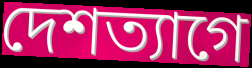
দেশত্যাগে